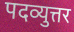
पदव्युत्तर